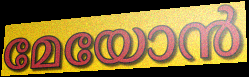
മേയോൻ